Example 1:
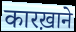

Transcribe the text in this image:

कारख़ाने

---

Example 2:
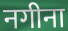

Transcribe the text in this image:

नगीना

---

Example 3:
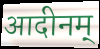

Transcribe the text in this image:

आदीनम्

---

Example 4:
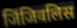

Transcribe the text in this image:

जिंजिवलिस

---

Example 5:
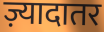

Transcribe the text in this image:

ज़्यादातर